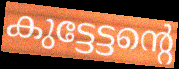
കുട്ടേട്ടന്റെ